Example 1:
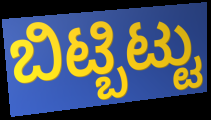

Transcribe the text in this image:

ಬಿಟ್ಬಿಟ್ಟು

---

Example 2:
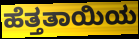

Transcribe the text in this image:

ಹೆತ್ತತಾಯಿಯ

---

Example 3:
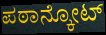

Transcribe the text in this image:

ಪಠಾನ್ಕೋಟ್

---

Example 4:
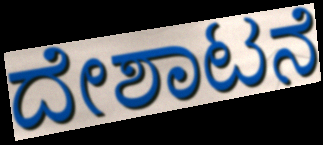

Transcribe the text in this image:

ದೇಶಾಟನೆ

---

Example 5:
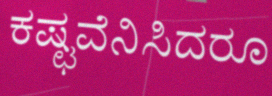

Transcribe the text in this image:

ಕಷ್ಟವೆನಿಸಿದರೂ